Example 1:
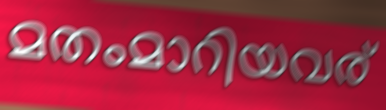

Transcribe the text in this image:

മതംമാറിയവര്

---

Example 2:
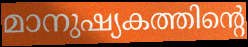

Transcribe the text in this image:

മാനുഷ്യകത്തിന്റെ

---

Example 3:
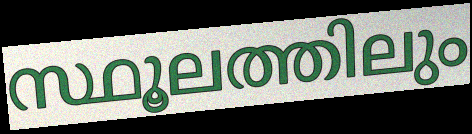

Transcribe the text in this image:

സ്ഥൂലത്തിലും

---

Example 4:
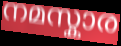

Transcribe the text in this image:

നമസ്കാര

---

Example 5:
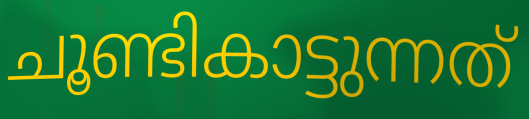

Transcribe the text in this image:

ചൂണ്ടികാട്ടുന്നത്